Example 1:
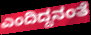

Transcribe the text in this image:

ಎಂದಿದ್ದನಂತೆ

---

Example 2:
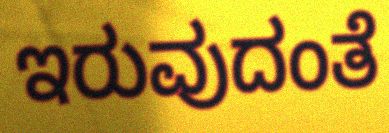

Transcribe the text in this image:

ಇರುವುದಂತೆ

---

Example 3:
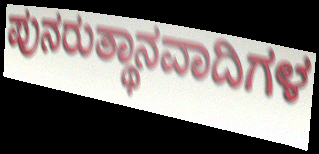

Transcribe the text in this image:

ಪುನರುತ್ಥಾನವಾದಿಗಳ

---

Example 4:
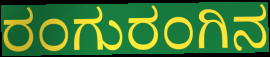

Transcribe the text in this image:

ರಂಗುರಂಗಿನ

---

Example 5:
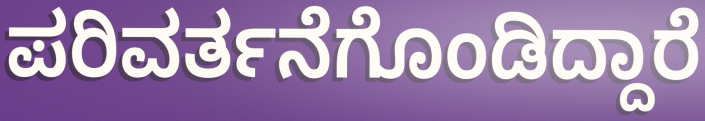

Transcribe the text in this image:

ಪರಿವರ್ತನೆಗೊಂಡಿದ್ದಾರೆ